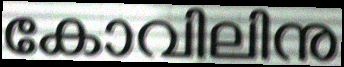
കോവിലിനു